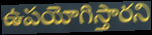
ఉపయోగిస్తారని